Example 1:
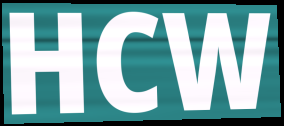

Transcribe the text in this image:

HCW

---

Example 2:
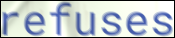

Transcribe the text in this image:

refuses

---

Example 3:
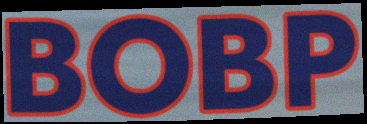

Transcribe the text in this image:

BOBP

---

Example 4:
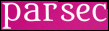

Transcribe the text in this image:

parsec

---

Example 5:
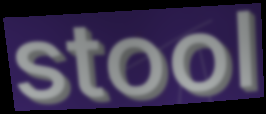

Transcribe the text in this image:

stool